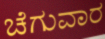
ಚೆಗುವಾರ